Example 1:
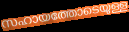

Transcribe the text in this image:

സഹായത്തോടെയുള്ള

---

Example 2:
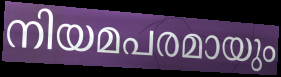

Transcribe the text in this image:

നിയമപരമായും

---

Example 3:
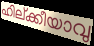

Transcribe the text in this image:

ഹില്ക്കീയാവു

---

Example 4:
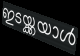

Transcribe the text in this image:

ഇടയ്ക്കയാൾ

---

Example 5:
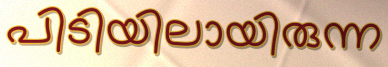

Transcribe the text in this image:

പിടിയിലായിരുന്ന